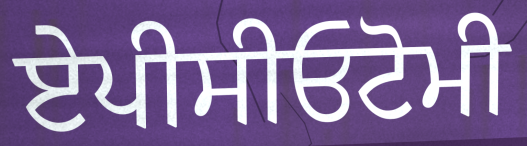
ਏਪੀਸੀਓਟੋਮੀ